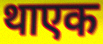
थाएक